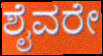
ಶೈವರೇ